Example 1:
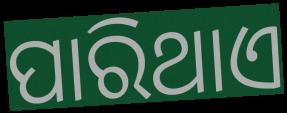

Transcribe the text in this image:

ପାରିଥାଏ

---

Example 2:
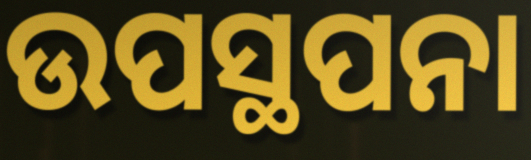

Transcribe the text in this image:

ଉପସ୍ଥପନା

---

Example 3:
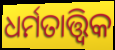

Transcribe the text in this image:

ଧର୍ମତାତ୍ତ୍ଵିକ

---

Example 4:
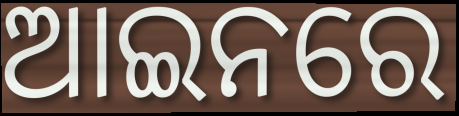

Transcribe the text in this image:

ଆଇନରେ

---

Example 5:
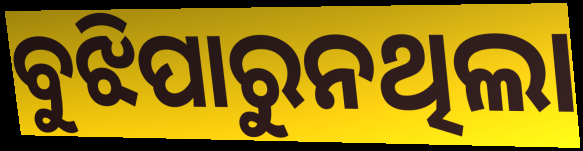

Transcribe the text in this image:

ବୁଝିପାରୁନଥିଲା